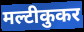
मल्टीकुकर